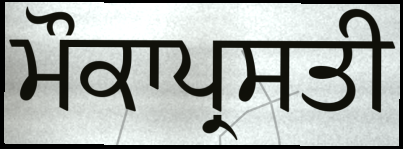
ਮੌਕਾਪ੍ਰਸਤੀ